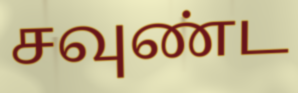
சவுண்ட